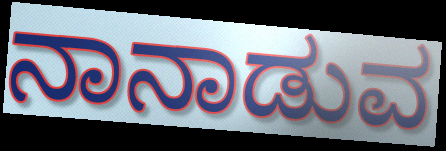
ನಾನಾಡುವ